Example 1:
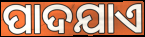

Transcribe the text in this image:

ପାଦଯାଏ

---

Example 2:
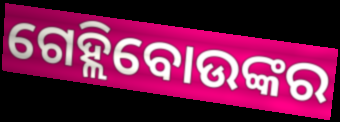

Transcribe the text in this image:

ଗେହ୍ଲିବୋଉଙ୍କର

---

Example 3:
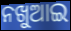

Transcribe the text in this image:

ନଖୁଆଇ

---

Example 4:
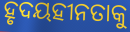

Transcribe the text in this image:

ହୃଦୟହୀନତାକୁ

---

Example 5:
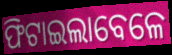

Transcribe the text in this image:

ଫିଟାଇଲାବେଳେ